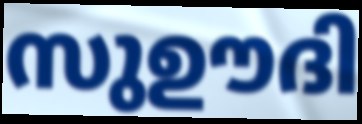
സുഊദി